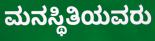
ಮನಸ್ಥಿತಿಯವರು